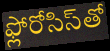
ఫ్లోరోసిస్‌తో